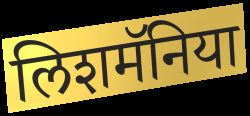
लिशमॅनिया